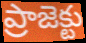
ప్రాజెక్టు